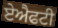
ਏਐਫਟੀ